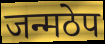
जन्मठेप